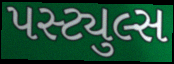
પસ્ટ્યુલ્સ